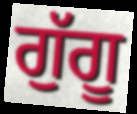
ਗੁੱਗੂ